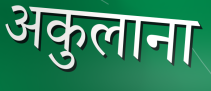
अकुलाना